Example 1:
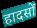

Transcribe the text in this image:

हादसों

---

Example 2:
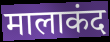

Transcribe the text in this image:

मालाकंद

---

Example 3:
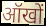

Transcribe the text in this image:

ऑखों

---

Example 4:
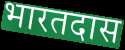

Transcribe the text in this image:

भारतदास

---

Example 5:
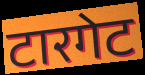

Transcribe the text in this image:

टारगेट